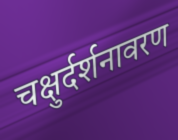
चक्षुर्दर्शनावरण